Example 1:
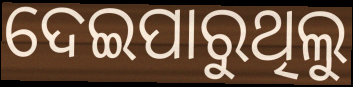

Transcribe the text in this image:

ଦେଇପାରୁଥିଲୁ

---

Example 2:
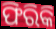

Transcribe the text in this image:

ଫିରିକି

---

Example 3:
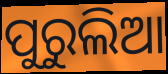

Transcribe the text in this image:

ପୁରୁଲିଆ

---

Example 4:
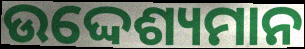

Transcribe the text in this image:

ଉଦ୍ଦେଶ୍ୟମାନ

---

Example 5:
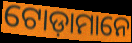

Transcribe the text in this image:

ଟୋଡ଼ାମାନେ